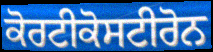
ਕੋਰਟੀਕੋਸਟੀਰੋਨ